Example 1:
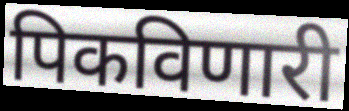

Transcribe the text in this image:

पिकविणारी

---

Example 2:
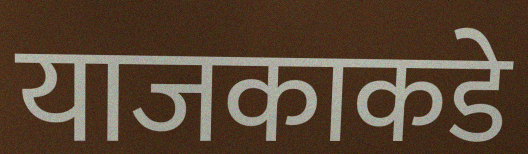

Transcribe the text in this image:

याजकाकडे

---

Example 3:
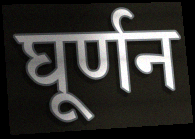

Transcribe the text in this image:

घूर्णन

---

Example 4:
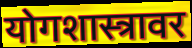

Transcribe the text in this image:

योगशास्त्रावर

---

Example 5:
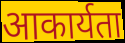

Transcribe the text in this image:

आकार्यता